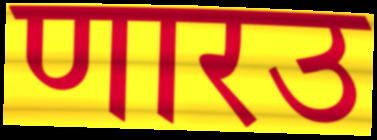
णारउ